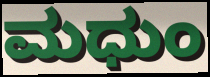
ಮಧುಂ